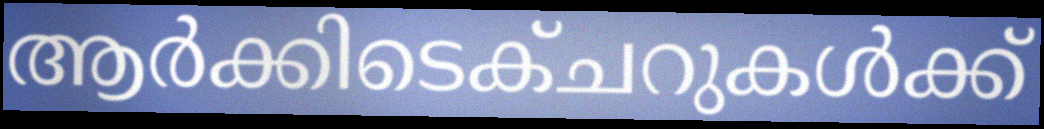
ആർക്കിടെക്ചറുകൾക്ക്